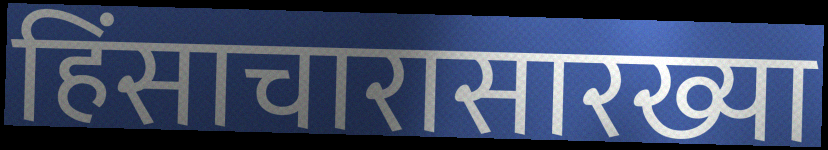
हिंसाचारासारख्या